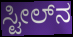
ಸ್ಟೀಲ್‌ನ